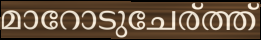
മാറോടുചേര്ത്ത്